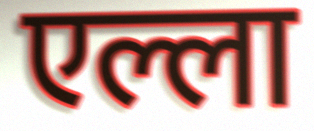
एल्ला